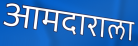
आमदाराला